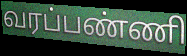
வரப்பண்ணி